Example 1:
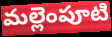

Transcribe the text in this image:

మల్లెంపూటి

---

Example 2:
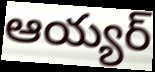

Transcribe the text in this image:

ఆయ్యర్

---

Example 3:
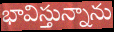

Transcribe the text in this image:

భావిస్తున్నాను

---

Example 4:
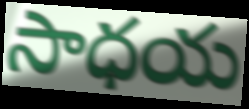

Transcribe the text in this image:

సాధయ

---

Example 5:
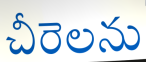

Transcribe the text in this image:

చీరెలను